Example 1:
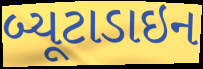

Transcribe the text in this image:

બ્યૂટાડાઇન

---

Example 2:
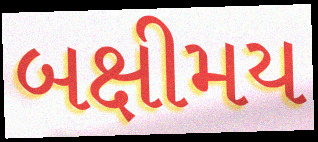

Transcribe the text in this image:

બક્ષીમય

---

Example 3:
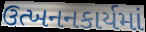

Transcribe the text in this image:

ઉત્ખનનકાર્યમાં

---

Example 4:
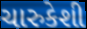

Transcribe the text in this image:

ચારુકેશી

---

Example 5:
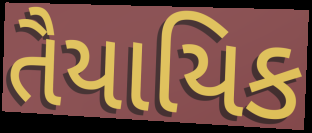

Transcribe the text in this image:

તૈયાયિક